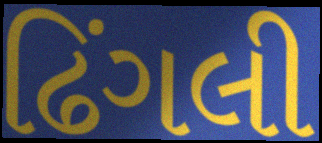
ઢિંગલી